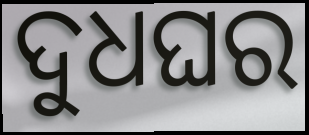
ଦୁଧଘର